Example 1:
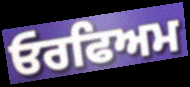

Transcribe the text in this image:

ਓਰਫਿਅਮ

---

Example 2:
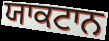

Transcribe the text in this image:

ਯਾਕਟਾਨ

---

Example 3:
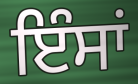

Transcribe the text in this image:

ਇੰਸਾਂ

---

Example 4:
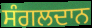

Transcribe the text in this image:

ਸੰਗਲਦਾਨ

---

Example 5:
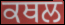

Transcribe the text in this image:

ਕਥਲ